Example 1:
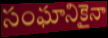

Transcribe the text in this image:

సంఘానికైనా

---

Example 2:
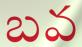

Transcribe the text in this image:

బవ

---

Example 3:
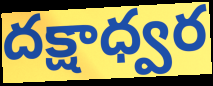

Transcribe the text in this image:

దక్షాధ్వర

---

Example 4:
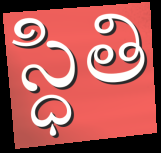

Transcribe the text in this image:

స్ధితి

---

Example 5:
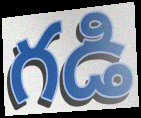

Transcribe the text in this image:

గడి